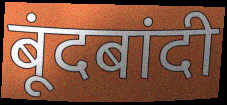
बूंदबांदी